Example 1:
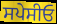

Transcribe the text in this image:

ਸਪੇਸੀਓ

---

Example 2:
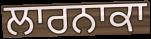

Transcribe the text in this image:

ਲਾਰਨਾਕਾ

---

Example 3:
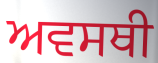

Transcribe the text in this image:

ਅਵਸਥੀ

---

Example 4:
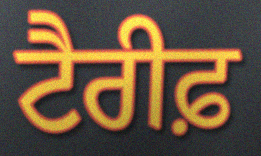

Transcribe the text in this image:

ਟੈਰੀਫ਼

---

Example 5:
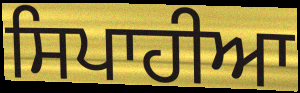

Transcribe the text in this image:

ਸਿਪਾਹੀਆ